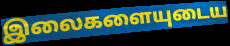
இலைகளையுடைய